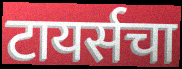
टायर्सचा